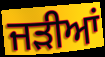
ਜੜੀਆਂ